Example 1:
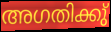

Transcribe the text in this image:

അഗതിക്കു്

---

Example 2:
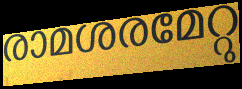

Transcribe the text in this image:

രാമശരമേറ്റു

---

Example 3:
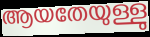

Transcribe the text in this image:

ആയതേയുള്ളു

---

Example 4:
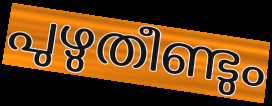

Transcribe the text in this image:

പുഴുതീണ്ടും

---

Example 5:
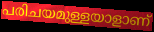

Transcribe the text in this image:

പരിചയമുള്ളയാളാണ്